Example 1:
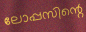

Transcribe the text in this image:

ലോപ്പസിന്റെ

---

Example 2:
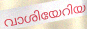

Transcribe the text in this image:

വാശിയേറിയ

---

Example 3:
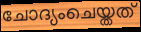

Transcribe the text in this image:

ചോദ്യംചെയ്തത്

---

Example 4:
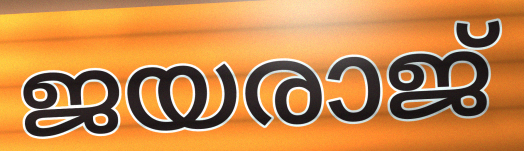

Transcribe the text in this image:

ജയരാജ്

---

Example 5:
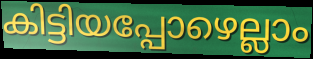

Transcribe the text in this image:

കിട്ടിയപ്പോഴെല്ലാം